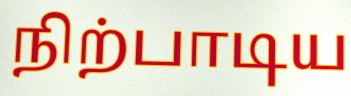
நிற்பாடிய